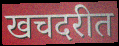
खचदरीत